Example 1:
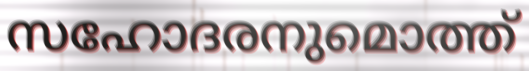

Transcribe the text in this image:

സഹോദരനുമൊത്ത്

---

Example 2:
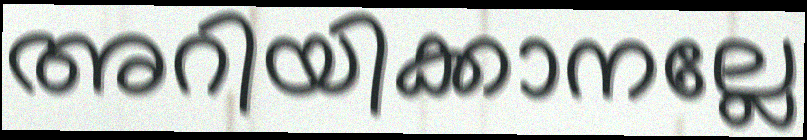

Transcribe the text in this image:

അറിയിക്കാനല്ലേ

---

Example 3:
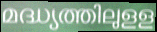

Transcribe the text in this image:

മദ്ധ്യത്തിലുളള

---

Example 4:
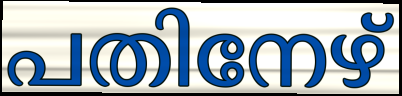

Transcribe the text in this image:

പതിനേഴ്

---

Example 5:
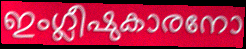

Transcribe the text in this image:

ഇംഗ്ലീഷുകാരനോ